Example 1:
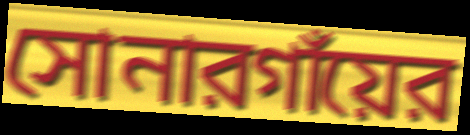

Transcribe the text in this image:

সোনারগাঁয়ের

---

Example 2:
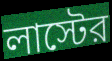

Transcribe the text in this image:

লাস্টের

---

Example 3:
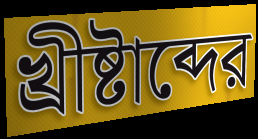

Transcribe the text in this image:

খ্রীষ্টাব্দের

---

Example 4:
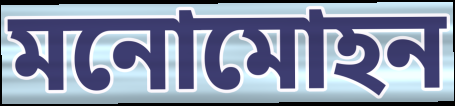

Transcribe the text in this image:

মনোমোহন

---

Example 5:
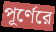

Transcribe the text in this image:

পূর্ণেরে